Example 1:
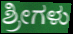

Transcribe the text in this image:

ಶ್ರೀಗಳು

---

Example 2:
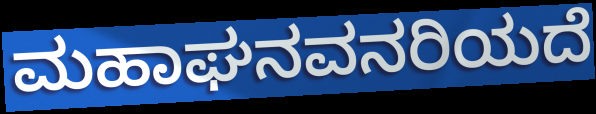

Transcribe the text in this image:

ಮಹಾಘನವನರಿಯದೆ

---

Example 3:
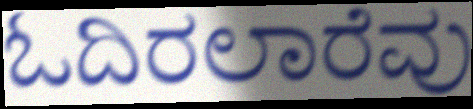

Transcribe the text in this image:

ಓದಿರಲಾರೆವು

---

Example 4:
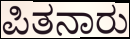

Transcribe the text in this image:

ಪಿತನಾರು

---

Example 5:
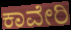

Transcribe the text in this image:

ಕಾವೇರಿ